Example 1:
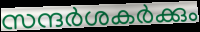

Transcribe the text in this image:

സന്ദർശകർക്കും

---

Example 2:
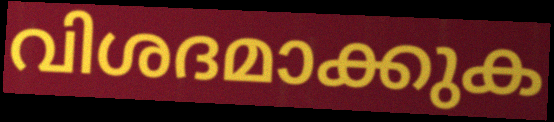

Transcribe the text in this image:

വിശദമാക്കുക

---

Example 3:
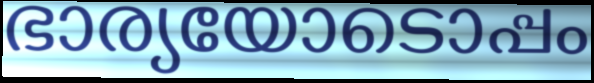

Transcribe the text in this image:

ഭാര്യയോടൊപ്പം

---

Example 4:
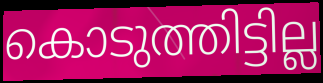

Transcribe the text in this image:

കൊടുത്തിട്ടില്ല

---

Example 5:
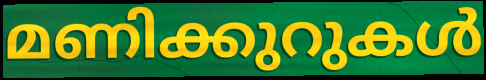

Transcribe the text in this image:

മണിക്കുറുകൾ